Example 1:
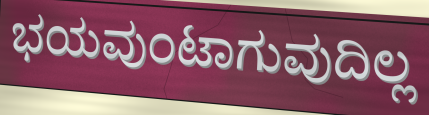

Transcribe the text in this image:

ಭಯವುಂಟಾಗುವುದಿಲ್ಲ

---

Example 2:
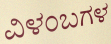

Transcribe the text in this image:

ವಿಳಂಬಗಳ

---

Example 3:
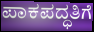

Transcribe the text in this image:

ಪಾಕಪದ್ಧತಿಗೆ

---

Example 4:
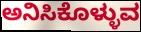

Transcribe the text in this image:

ಅನಿಸಿಕೊಳ್ಳುವ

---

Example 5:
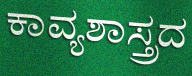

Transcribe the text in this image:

ಕಾವ್ಯಶಾಸ್ತ್ರದ